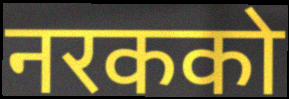
नरकको